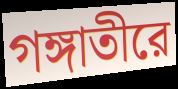
গঙ্গাতীরে